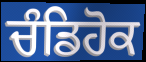
ਚੰਡਿਹੋਕ